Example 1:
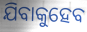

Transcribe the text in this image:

ଯିବାକୁହେବ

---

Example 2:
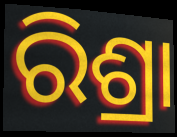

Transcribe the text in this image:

ରିଶ୍ରା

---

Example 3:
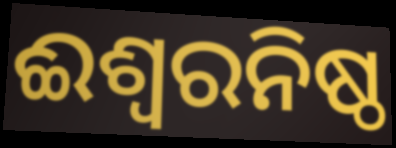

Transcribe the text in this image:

ଈଶ୍ୱରନିଷ୍ଠ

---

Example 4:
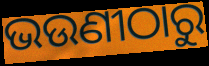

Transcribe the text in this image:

ଭଉଣୀଠାରୁ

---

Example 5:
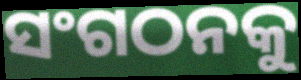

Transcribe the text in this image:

ସଂଗଠନକୁ